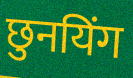
छुनयिंग